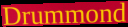
Drummond